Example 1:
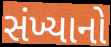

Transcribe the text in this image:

સંખ્યાનો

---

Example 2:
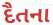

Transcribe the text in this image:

દૈતના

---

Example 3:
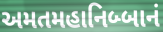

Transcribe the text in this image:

અમતમહાનિબ્બાનં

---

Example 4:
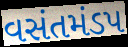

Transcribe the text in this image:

વસંતમંડપ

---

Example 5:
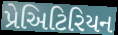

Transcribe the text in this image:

પ્રેઅિટિરિયન